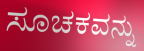
ಸೂಚಕವನ್ನು